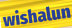
wishalun